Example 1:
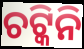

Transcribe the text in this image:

ଚଟ୍କିନି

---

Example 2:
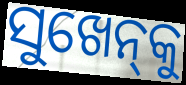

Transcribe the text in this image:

ସୁଖେନ୍‌କୁ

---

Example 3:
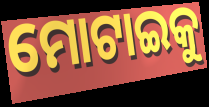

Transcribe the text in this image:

ମୋଟାଇକୁ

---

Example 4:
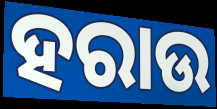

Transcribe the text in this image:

ହରାଉ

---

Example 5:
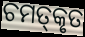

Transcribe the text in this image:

ଚମତ୍‍କୃତ